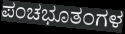
ಪಂಚಭೂತಂಗಳ